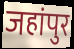
जहांपुर